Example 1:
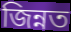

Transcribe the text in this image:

জিন্নত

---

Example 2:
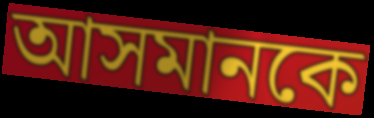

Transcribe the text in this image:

আসমানকে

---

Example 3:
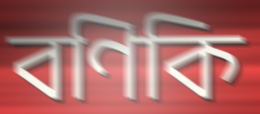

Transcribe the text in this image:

বণিকি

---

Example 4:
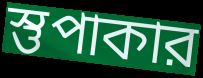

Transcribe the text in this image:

স্তুপাকার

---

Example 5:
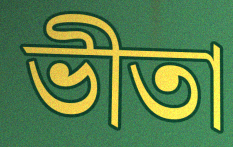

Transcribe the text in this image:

ভীতা